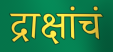
द्राक्षांचं